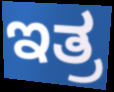
ಇತ್ರ